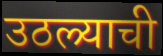
उठल्याची